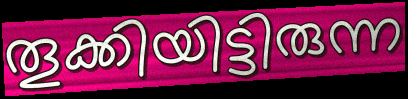
തൂക്കിയിട്ടിരുന്ന